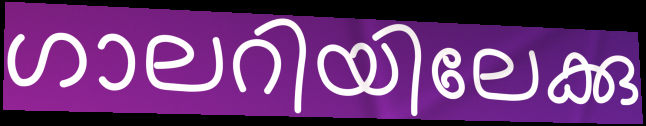
ഗാലറിയിലേക്കു